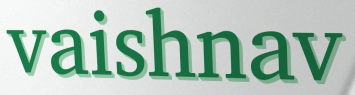
vaishnav